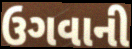
ઉગવાની